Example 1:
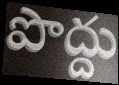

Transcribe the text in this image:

పొద్దు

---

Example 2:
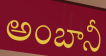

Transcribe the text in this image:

అంబానీ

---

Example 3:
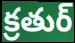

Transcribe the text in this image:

క్రతుర్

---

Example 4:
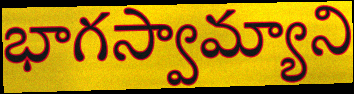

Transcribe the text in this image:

భాగస్వామ్యాని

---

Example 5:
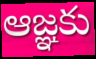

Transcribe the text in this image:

ఆజ్ఞకు